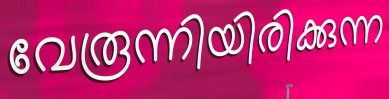
വേരൂന്നിയിരിക്കുന്ന